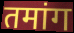
तमांग